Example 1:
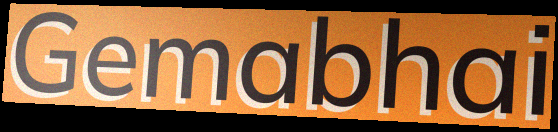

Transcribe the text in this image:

Gemabhai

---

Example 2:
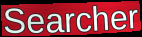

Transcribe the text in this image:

Searcher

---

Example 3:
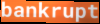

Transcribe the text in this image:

bankrupt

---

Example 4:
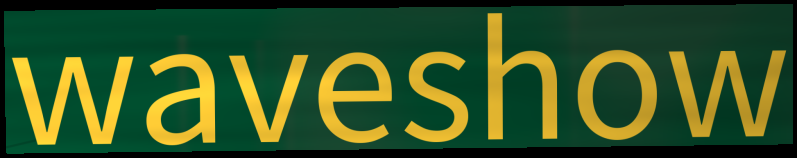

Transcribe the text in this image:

waveshow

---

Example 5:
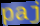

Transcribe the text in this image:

paj